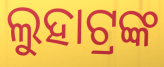
ଲୁହାଟ୍ରଙ୍କ